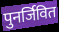
पुनर्जिवित